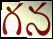
గన